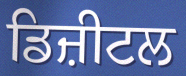
ਡਿਜ਼ੀਟਲ